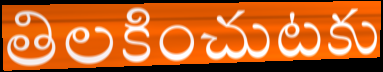
తిలకించుటకు